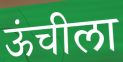
ऊंचीला